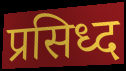
प्रसिध्द